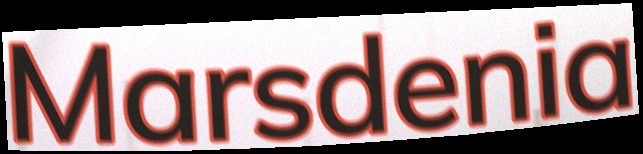
Marsdenia